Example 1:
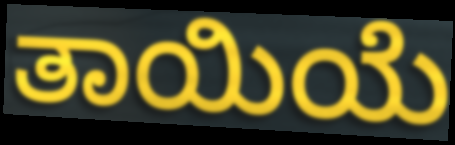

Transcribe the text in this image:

ತಾಯಿಯೆ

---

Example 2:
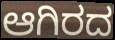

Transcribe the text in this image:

ಆಗಿರದ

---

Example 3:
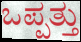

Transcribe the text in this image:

ಒಪ್ಪತ್ತು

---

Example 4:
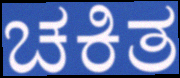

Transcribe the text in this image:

ಚಕಿತ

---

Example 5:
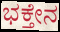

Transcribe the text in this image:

ಭಕ್ತೇನ